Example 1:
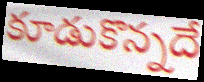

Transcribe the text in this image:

కూడుకొన్నదే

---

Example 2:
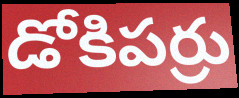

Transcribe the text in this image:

డోకిపర్రు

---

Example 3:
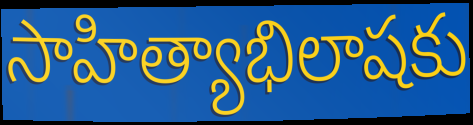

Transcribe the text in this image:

సాహిత్యాభిలాషకు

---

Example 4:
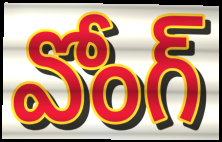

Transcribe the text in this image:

వోంగ్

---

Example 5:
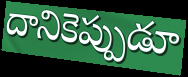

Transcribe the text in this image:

దానికెప్పుడూ